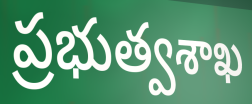
ప్రభుత్వశాఖ